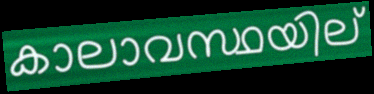
കാലാവസ്ഥയില്